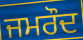
ਜਮਰੌਦ